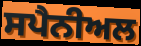
ਸਪੈਨੀਅਲ